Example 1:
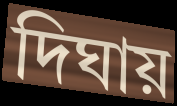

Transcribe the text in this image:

দিঘায়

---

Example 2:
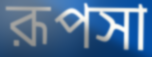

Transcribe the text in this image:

রূপসা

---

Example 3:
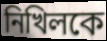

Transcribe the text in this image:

নিখিলকে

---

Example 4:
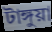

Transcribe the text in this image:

টাঙ্গুয়া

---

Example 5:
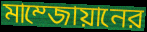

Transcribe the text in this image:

মাম্জোয়ানের